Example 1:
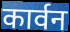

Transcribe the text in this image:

कार्वन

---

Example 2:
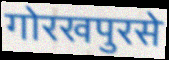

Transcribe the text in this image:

गोरखपुरसे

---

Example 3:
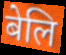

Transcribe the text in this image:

बेलि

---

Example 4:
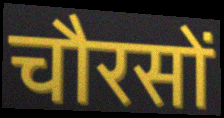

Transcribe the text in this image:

चौरसों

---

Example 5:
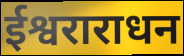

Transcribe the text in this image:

ईश्वराराधन